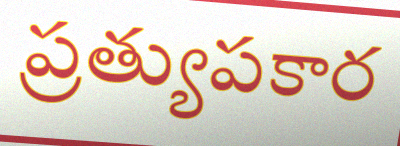
ప్రత్యుపకార